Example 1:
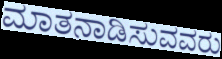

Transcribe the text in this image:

ಮಾತನಾಡಿಸುವವರು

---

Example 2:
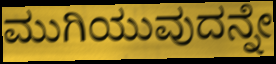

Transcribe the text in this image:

ಮುಗಿಯುವುದನ್ನೇ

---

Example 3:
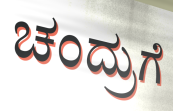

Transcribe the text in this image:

ಚಂದ್ರುಗೆ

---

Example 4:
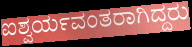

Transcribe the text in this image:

ಐಶ್ವರ್ಯವಂತರಾಗಿದ್ದರು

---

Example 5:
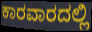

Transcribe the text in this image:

ಕಾರವಾರದಲ್ಲಿ